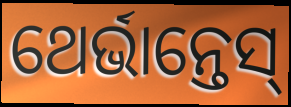
ଥେର୍ଭାନ୍ତେସ୍